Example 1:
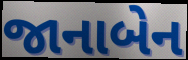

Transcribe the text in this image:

જાનાબેન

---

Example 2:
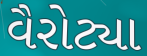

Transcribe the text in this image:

વૈરોટ્યા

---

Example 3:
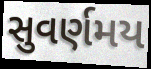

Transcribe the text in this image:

સુવર્ણમય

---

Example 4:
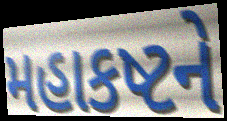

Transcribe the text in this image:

મહાકષ્ટને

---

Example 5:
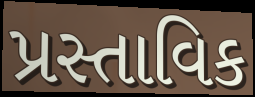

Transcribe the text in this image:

પ્રસ્તાવિક